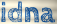
idna